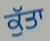
ਕੁੱਤਾ